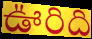
ఊరిది